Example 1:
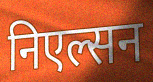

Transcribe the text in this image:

निएल्सन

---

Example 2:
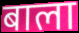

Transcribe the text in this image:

बाला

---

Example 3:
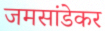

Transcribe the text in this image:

जमसांडेकर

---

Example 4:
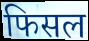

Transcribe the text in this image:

फिसल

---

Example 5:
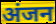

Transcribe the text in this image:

अंजन